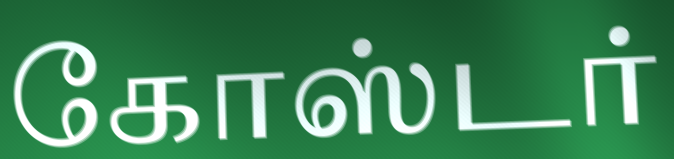
கோஸ்டர்